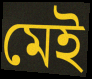
মেই